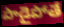
పాడైపోతే